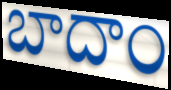
బాదాం